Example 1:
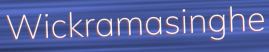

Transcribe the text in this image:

Wickramasinghe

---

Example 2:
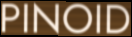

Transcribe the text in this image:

PINOID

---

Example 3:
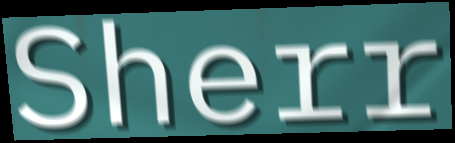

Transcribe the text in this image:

Sherr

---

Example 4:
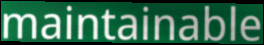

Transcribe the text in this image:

maintainable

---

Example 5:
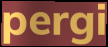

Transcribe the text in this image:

pergi